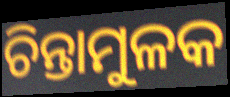
ଚିନ୍ତାମୁଳକ